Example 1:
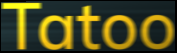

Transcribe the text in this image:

Tatoo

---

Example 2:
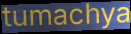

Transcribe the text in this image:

tumachya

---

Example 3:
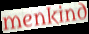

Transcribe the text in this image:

menkind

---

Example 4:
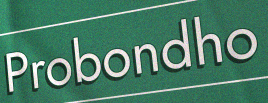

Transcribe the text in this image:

Probondho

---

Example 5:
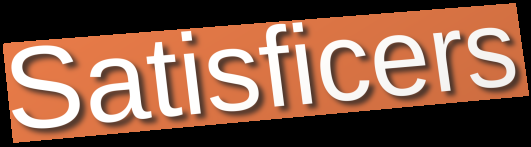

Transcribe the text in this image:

Satisficers